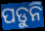
ପଡୁନି